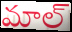
మాల్